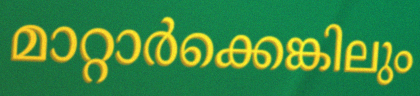
മാറ്റാർക്കെങ്കിലും